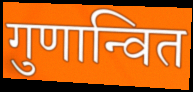
गुणान्वित